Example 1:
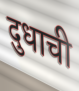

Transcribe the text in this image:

दुधाची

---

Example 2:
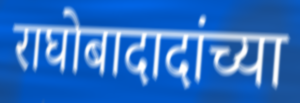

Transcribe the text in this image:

राघोबादादांच्या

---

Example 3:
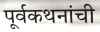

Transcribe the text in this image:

पूर्वकथनांची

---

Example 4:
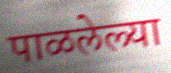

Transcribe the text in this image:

पाळलेल्या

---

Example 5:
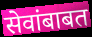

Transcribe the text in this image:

सेवांबाबत